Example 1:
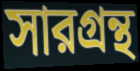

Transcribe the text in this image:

সারগ্রন্থ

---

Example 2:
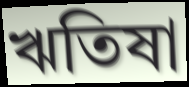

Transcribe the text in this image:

ঋতিষা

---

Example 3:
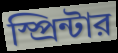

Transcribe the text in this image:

স্প্রিন্টার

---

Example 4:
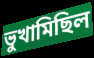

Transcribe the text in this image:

ভুখামিছিল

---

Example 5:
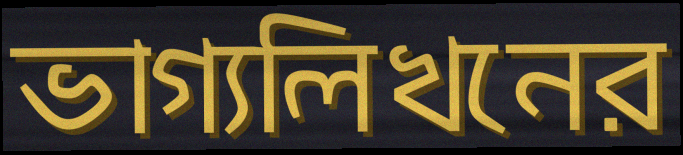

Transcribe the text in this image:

ভাগ্যলিখনের